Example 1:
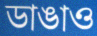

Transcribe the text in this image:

ডাঙাও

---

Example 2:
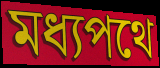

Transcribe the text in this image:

মধ্যপথে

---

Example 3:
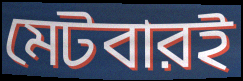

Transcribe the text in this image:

মেটবারই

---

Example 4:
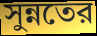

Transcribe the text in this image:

সুন্নতের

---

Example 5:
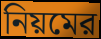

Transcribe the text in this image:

নিয়মের